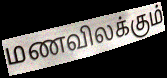
மணவிலக்கும்